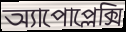
অ্যাপোপ্লেক্সি